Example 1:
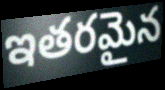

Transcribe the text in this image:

ఇతరమైన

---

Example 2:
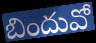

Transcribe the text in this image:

బిందువో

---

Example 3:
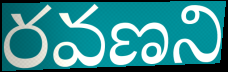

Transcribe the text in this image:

రవణని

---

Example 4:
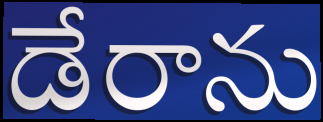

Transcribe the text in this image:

డేరాను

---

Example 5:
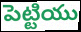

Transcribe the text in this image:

పెట్టియు